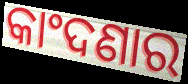
କାଂଦଣାର